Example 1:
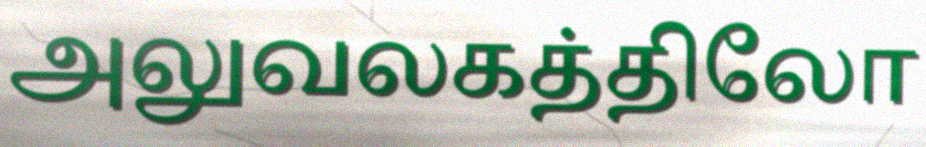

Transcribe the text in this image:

அலுவலகத்திலோ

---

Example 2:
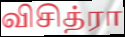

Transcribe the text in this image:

விசித்ரா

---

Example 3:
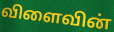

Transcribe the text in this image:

விளைவின்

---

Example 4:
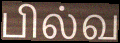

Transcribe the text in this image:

பில்வ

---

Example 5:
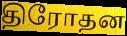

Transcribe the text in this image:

திரோதன